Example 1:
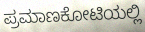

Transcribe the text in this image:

ಪ್ರಮಾಣಕೋಟಿಯಲ್ಲಿ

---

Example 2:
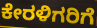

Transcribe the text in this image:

ಕೇರಳಿಗರಿಗೆ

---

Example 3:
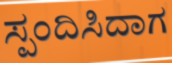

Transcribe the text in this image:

ಸ್ಪಂದಿಸಿದಾಗ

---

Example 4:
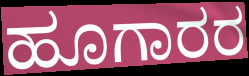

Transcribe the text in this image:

ಹೂಗಾರರ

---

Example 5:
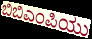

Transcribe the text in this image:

ಬಿಬಿಎಂಪಿಯು